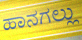
ಹಾನಗಲ್ಲು